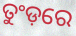
ତୁଂଡ଼ରେ